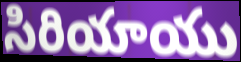
సిరియాయు